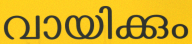
വായിക്കും